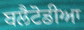
ਬਲੈਟੋਡੀਆ